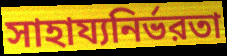
সাহায্যনির্ভরতা